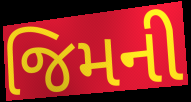
જિમની